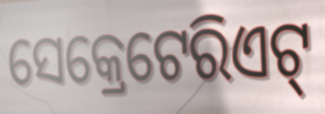
ସେକ୍ରେଟେରିଏଟ୍